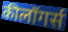
कीलॉगर्स